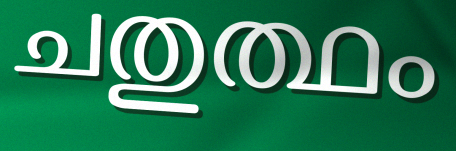
ചതുത്ഥം